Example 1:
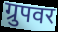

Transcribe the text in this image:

ग्रुपवर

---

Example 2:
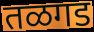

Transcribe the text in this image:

तळगड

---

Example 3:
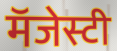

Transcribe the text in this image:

मॅजेस्टी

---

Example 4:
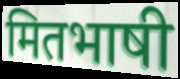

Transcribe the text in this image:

मितभाषी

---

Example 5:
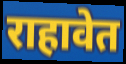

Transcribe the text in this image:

राहावेत